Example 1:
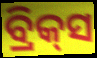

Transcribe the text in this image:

ବ୍ରିକ୍‌ସ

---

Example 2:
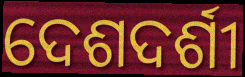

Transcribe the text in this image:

ଦେଶଦର୍ଶୀ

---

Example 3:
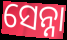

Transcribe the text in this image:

ସେନ୍ନା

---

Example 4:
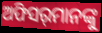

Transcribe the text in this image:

ଅଫିସର୍‌ମାନଙ୍କୁ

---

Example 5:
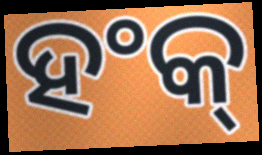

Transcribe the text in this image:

ହଂକ୍